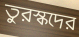
তুরস্কদের